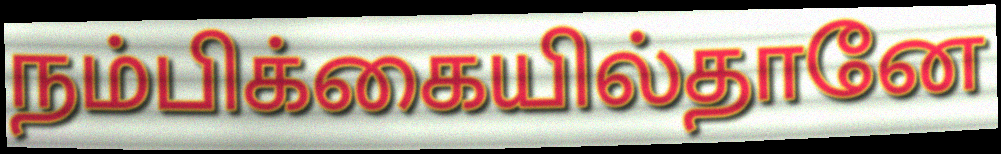
நம்பிக்கையில்தானே